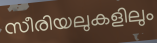
സീരിയലുകളിലും